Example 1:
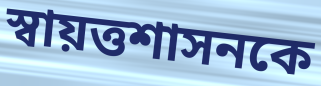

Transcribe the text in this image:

স্বায়ত্তশাসনকে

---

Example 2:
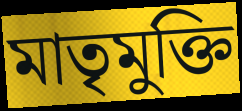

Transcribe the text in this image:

মাতৃমুক্তি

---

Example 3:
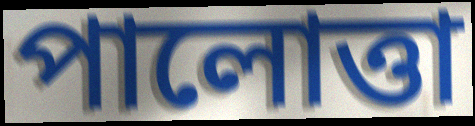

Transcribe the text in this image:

পালোত্তা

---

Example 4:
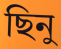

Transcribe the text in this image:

ছিনু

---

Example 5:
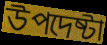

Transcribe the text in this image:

উপদেষ্টা